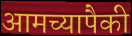
आमच्यापैकी